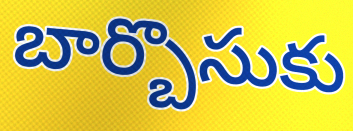
బార్బొసుకు